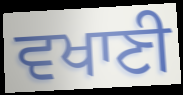
ਵਖਾਣੀ